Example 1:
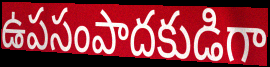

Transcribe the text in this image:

ఉపసంపాదకుడిగా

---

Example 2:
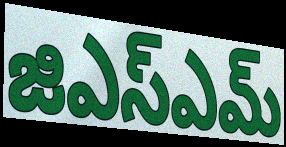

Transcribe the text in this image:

జిఎస్ఎమ్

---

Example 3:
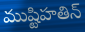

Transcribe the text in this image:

ముష్టిహతిన్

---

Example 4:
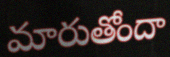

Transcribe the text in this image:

మారుతోందా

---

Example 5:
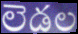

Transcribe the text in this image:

లెడల